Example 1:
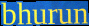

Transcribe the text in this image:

bhurun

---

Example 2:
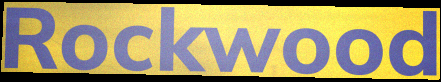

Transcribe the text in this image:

Rockwood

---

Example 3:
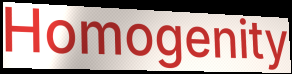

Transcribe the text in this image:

Homogenity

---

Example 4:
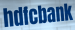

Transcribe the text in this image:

hdfcbank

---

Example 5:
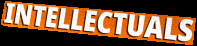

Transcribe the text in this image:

INTELLECTUALS